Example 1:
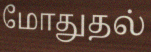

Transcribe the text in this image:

மோதுதல்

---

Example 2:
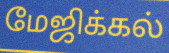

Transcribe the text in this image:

மேஜிக்கல்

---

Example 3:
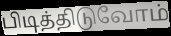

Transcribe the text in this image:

பிடித்திடுவோம்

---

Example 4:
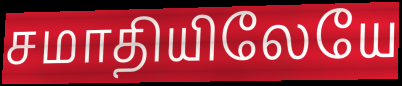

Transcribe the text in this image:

சமாதியிலேயே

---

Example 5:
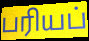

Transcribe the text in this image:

பரியப்